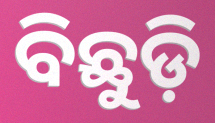
ବିଛୁଡ଼ି